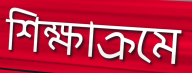
শিক্ষাক্রমে